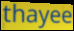
thayee